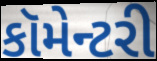
કૉમેન્ટરી